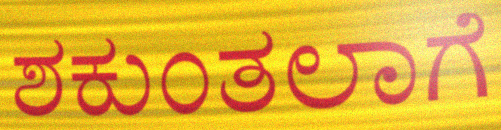
ಶಕುಂತಲಾಗೆ